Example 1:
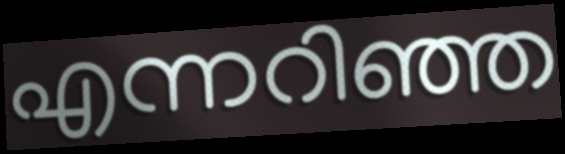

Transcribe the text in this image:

എന്നറിഞ്ഞ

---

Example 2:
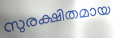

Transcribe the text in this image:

സുരക്ഷിതമായ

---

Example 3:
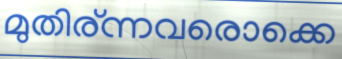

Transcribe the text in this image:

മുതിര്ന്നവരൊക്കെ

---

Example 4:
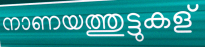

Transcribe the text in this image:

നാണയത്തുട്ടുകള്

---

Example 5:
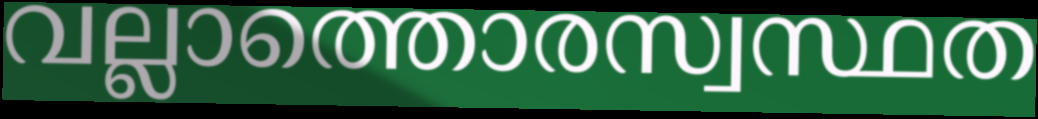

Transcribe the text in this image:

വല്ലാത്തൊരസ്വസ്ഥത